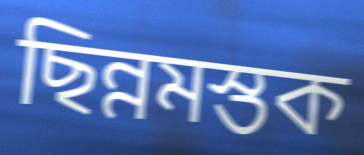
ছিন্নমস্তক